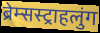
ब्रेम्सस्ट्राहलुंग